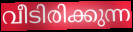
വീടിരിക്കുന്ന